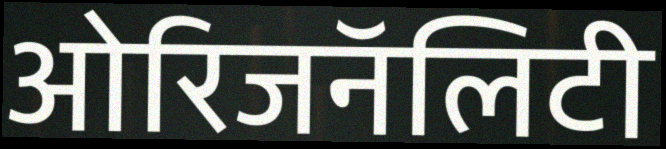
ओरिजनॅलिटी